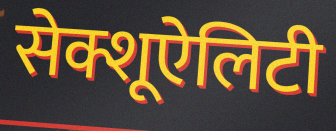
सेक्शूऐलिटी